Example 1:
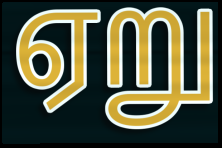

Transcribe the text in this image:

ஏறு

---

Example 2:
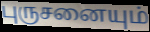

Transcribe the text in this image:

புருசனையும்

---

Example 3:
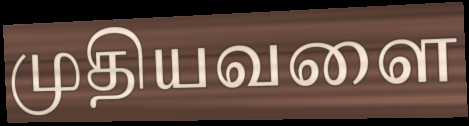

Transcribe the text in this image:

முதியவளை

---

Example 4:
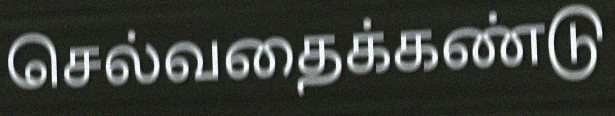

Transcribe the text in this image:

செல்வதைக்கண்டு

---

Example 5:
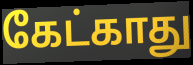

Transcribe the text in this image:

கேட்காது